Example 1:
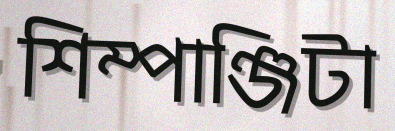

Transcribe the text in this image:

শিম্পাঞ্জিটা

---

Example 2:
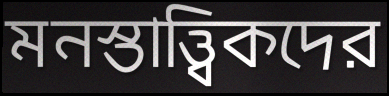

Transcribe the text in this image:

মনস্তাত্ত্বিকদের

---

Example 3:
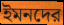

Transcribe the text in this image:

ইমনদের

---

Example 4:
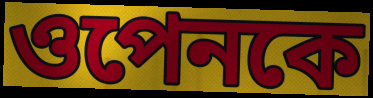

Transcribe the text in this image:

ওপেনকে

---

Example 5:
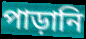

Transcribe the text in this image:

পাড়ানি